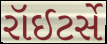
રૉઈટર્સે